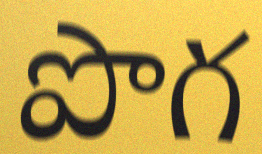
పొగ